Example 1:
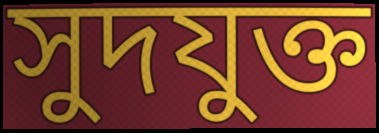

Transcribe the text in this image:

সুদযুক্ত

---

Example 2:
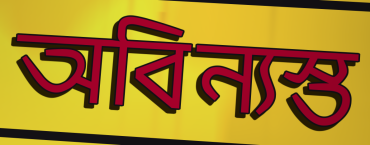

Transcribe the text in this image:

অবিন্যস্ত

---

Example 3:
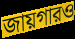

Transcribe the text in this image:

জায়গারও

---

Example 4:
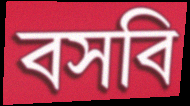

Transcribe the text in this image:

বসবি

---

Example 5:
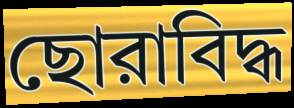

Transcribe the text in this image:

ছোরাবিদ্ধ